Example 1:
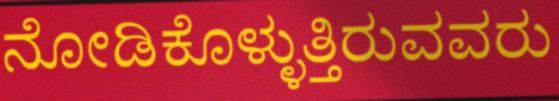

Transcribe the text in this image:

ನೋಡಿಕೊಳ್ಳುತ್ತಿರುವವರು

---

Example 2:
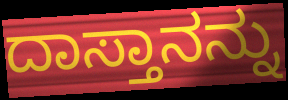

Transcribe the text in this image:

ದಾಸ್ತಾನನ್ನು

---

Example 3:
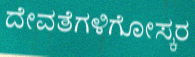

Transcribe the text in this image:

ದೇವತೆಗಳಿಗೋಸ್ಕರ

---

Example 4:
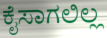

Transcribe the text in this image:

ಕೈಸಾಗಲಿಲ್ಲ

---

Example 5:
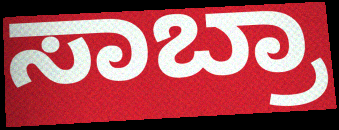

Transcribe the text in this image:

ಸಾಬ್ರಾ